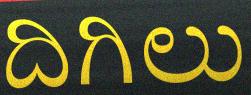
ದಿಗಿಲು